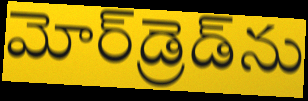
మోర్‌డ్రెడ్‌ను